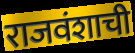
राजवंशाची